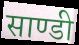
साण्डी